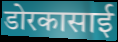
डोरकासाई